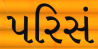
પરિસં